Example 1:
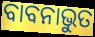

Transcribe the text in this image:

ବାବନାଭୁତ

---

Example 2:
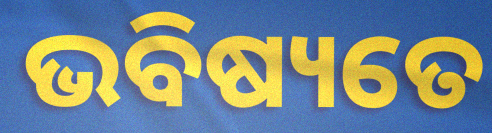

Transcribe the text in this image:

ଭବିଷ୍ୟତେ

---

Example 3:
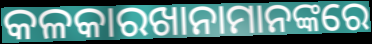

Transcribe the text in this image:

କଳକାରଖାନାମାନଙ୍କରେ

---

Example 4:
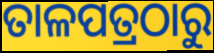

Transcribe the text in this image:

ତାଳପତ୍ରଠାରୁ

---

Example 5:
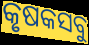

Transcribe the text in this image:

କୃଷକସବୁ